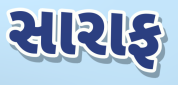
સારાફ